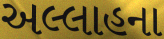
અલ્લાહના